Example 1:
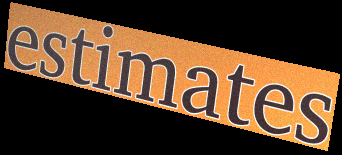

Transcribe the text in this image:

estimates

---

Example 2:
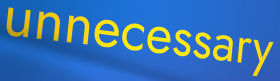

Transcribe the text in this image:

unnecessary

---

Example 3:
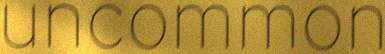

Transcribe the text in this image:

uncommon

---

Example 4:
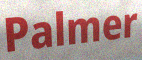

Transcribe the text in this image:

Palmer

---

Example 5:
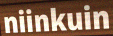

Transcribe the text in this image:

niinkuin